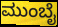
ಮುಂಬೈ